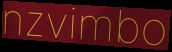
nzvimbo